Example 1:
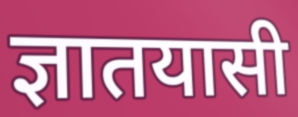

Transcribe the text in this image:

ज्ञातयासी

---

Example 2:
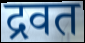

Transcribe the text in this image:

द्रवत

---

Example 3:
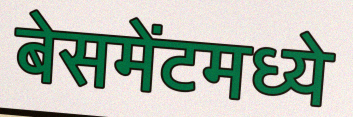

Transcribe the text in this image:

बेसमेंटमध्ये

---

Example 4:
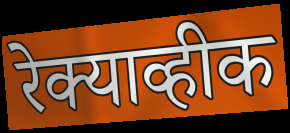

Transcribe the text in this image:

रेक्याव्हीक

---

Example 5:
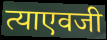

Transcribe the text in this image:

त्याएवजी